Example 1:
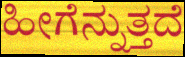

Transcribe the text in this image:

ಹೀಗೆನ್ನುತ್ತದೆ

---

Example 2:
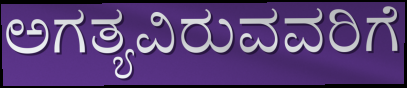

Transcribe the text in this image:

ಅಗತ್ಯವಿರುವವರಿಗೆ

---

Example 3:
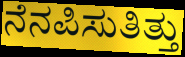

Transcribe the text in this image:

ನೆನಪಿಸುತಿತ್ತು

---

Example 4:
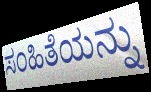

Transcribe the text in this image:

ಸಂಹಿತೆಯನ್ನು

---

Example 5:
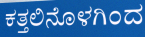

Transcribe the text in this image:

ಕತ್ತಲಿನೊಳಗಿಂದ